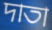
দাতা